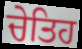
ਚੇਤਿਹ